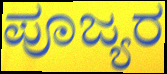
ಪೂಜ್ಯರ